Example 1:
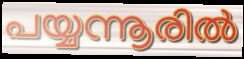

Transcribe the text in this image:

പയ്യന്നൂരിൽ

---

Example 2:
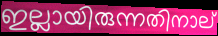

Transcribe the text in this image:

ഇല്ലായിരുന്നതിനാല്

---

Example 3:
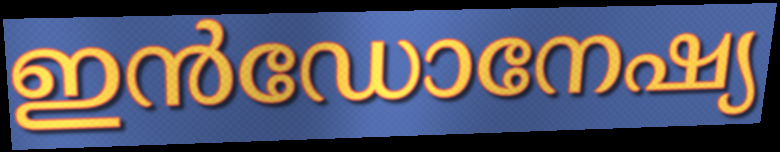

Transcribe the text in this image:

ഇൻഡോനേഷ്യ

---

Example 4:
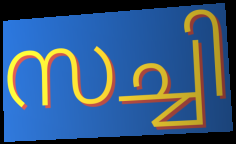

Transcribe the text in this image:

സച്ചി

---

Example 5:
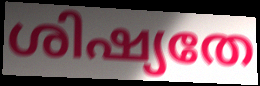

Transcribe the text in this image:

ശിഷ്യതേ